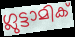
ഗ്ലുട്ടാമിക്